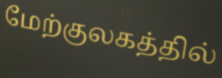
மேற்குலகத்தில்